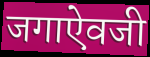
जगाऐवजी